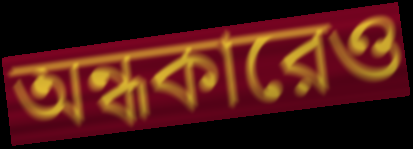
অন্ধকারেও